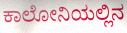
ಕಾಲೋನಿಯಲ್ಲಿನ